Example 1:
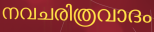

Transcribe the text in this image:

നവചരിത്രവാദം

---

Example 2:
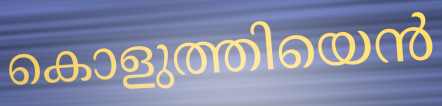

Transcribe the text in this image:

കൊളുത്തിയെൻ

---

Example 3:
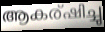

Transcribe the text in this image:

ആകര്ഷിച്ചു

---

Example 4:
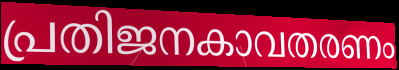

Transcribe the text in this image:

പ്രതിജനകാവതരണം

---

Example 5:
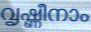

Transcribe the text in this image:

വൃഷ്ണീനാം